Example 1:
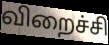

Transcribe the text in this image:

விறைச்சி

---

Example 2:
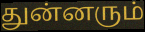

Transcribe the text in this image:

துன்னரும்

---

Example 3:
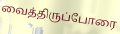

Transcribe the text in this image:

வைத்திருப்போரை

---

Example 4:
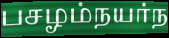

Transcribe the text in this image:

பசழம்நயர்ந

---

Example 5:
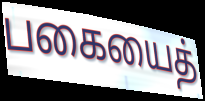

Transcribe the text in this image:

பகையைத்